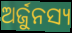
ଅର୍ଜୁନସ୍ୟ